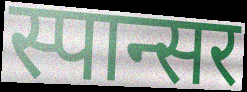
स्पान्सर